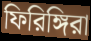
ফিরিঙ্গিরা